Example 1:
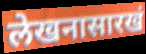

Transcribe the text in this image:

लेखनासारखं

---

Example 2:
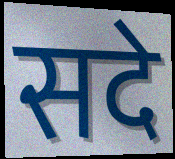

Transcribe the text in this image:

सदे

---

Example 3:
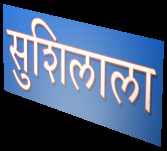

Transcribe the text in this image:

सुशिलाला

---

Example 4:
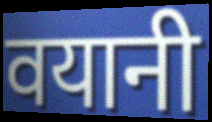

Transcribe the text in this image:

वयानी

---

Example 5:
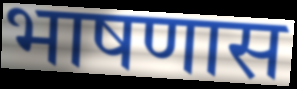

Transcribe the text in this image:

भाषणास